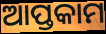
ଆପ୍ତକାମ